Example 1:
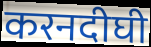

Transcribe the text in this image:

करनदीघी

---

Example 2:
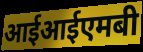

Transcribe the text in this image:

आईआईएमबी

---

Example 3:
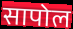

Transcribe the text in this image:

सापोल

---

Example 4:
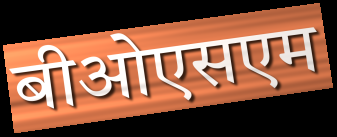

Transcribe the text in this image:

बीओएसएम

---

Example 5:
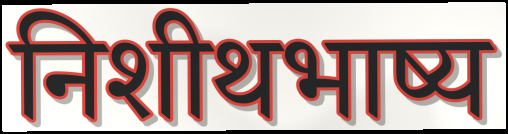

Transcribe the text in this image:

निशीथभाष्य